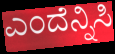
ಎಂದೆನ್ನಿಸಿ